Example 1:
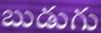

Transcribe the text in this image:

బుడుగు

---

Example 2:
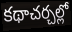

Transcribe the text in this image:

కథాచర్చల్లో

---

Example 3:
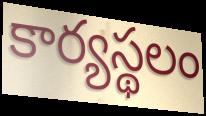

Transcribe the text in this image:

కార్యస్థలం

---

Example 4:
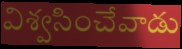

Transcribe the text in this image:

విశ్వసించేవాడు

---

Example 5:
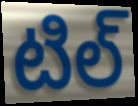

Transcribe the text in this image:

టిల్